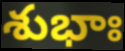
శుభాః